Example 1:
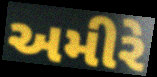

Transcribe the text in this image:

અમીરે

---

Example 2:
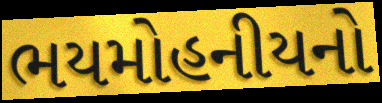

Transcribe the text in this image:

ભયમોહનીયનો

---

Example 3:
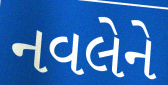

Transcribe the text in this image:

નવલેને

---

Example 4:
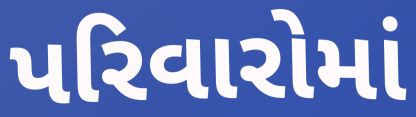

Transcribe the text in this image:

પરિવારોમાં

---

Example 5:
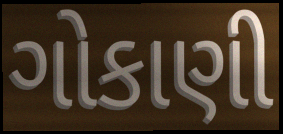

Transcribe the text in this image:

ગોકાણી